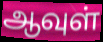
ஆவுள்